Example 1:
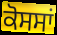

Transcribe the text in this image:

ਕੋਸਸਾਂ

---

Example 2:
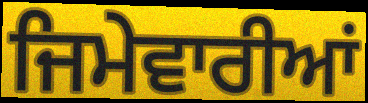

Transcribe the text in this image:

ਜਿਮੇਵਾਰੀਆਂ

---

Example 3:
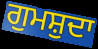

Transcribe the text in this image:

ਗੁਮਸ਼ੁਦਾ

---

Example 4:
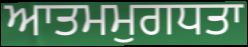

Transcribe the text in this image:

ਆਤਮਮੁਗਧਤਾ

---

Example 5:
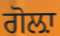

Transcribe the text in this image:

ਗੋਲ਼ਾ